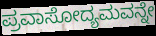
ಪ್ರವಾಸೋದ್ಯಮವನ್ನೇ